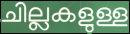
ചില്ലകളുള്ള